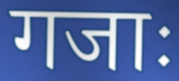
गजाः